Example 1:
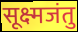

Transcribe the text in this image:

सूक्ष्मजंतु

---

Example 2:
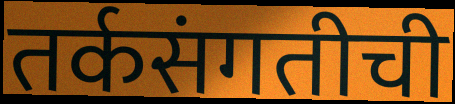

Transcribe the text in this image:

तर्कसंगतीची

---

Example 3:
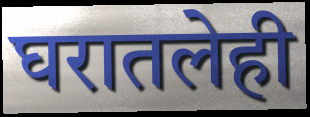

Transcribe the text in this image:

घरातलेही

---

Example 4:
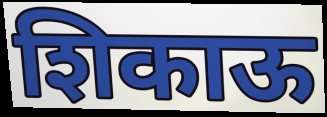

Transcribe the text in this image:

शिकाऊ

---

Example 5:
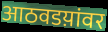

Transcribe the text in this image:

आठवडय़ांवर